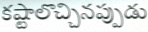
కష్టాలొచ్చినప్పుడు